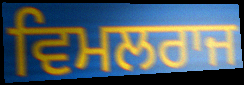
ਵਿਮਲਰਾਜ